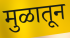
मुळातून